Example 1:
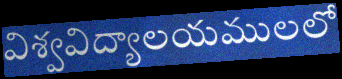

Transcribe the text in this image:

విశ్వవిద్యాలయములలో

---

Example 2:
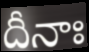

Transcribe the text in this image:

దీనాః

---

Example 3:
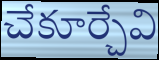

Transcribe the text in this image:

చేకూర్చేవి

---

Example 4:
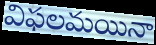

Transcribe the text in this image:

విఫలమయినా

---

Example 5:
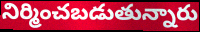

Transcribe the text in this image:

నిర్మించబడుతున్నారు